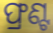
ଫ୍ରଣ୍ଟ